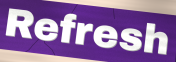
Refresh